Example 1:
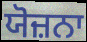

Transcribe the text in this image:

ਯੋਜ਼ਨਾ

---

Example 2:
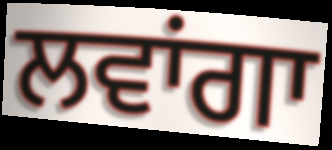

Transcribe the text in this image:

ਲਵਾਂਗਾ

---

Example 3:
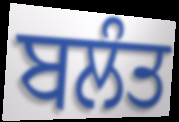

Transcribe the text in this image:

ਬਲੰਤ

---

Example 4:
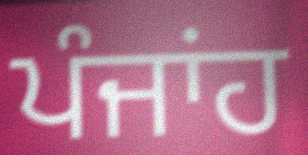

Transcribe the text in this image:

ਪੰਜਾਂਹ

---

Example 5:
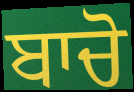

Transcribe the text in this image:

ਬਾਚੋ